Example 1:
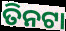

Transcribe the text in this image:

ତିନଟା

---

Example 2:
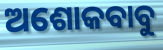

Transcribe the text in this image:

ଅଶୋକବାବୁ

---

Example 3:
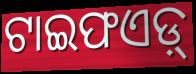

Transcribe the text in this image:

ଟାଇଫଏଡ଼୍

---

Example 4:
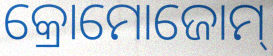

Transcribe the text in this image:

କ୍ରୋମୋଜୋମ୍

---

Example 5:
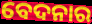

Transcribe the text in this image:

ବେଦନାର